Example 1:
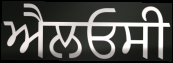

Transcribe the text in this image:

ਐਲਓਸੀ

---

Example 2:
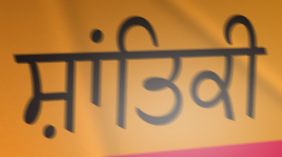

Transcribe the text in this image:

ਸ਼ਾਂਤਿਕੀ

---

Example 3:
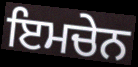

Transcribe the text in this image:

ਇਮਚੇਨ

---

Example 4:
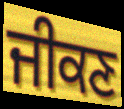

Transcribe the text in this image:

ਜੀਕਣ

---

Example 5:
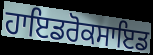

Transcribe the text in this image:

ਹਾਇਡਰੋਕਸਾਇਡ